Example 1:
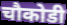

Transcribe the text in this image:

चौकोडी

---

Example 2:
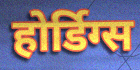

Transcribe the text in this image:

होर्डिग्स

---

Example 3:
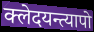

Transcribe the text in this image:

क्लेदयन्त्यापो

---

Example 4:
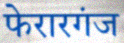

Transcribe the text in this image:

फेरारगंज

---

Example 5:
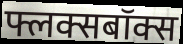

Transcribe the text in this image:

फ्लक्सबॉक्स